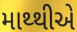
માથ્થીએ